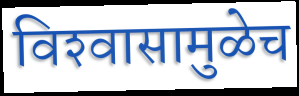
विश्वासामुळेच